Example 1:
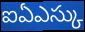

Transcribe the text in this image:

ఐఏఎస్కు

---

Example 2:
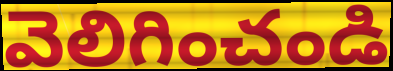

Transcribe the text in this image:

వెలిగించండి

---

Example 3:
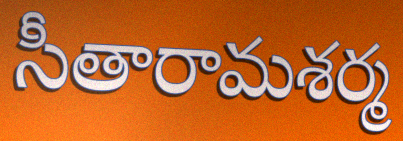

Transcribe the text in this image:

సీతారామశర్మ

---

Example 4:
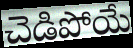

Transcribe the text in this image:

చెడిపోయే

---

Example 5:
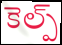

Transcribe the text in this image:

కెల్ప్